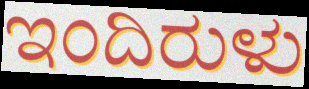
ಇಂದಿರುಳು